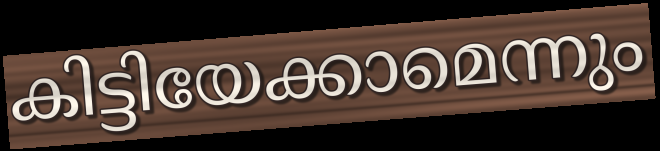
കിട്ടിയേക്കാമെന്നും